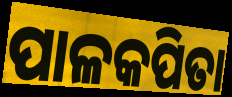
ପାଳକପିତା